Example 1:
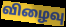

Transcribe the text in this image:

விழைவு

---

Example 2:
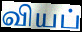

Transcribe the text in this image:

வியப்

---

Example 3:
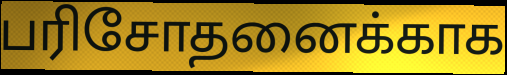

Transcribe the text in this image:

பரிசோதனைக்காக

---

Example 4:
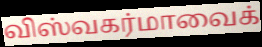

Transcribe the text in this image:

விஸ்வகர்மாவைக்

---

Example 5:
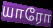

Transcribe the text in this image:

யாரோ